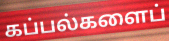
கப்பல்களைப்